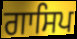
ਗਾਸਿਪ